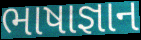
ભાષાજ્ઞાન